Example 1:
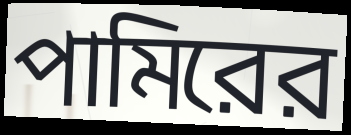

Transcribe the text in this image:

পামিরের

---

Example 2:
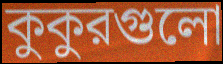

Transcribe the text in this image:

কুকুরগুলো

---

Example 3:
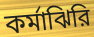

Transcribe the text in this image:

কর্মাঝিরি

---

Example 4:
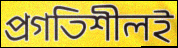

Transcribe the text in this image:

প্রগতিশীলই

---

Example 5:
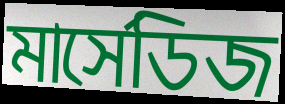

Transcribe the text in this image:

মার্সেডিজ